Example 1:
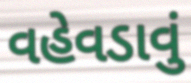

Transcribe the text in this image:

વહેવડાવું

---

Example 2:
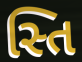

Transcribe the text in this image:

સ્તિ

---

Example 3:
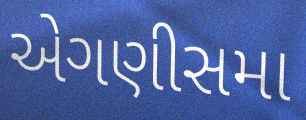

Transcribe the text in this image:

એગણીસમા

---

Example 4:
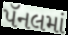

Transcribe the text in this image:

પૅનલમાં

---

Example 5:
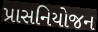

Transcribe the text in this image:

પ્રાસનિયોજન